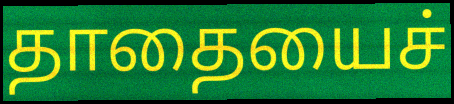
தாதையைச்